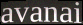
avanai